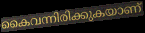
കൈവന്നിരിക്കുകയാണ്